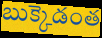
బుక్కెడంత